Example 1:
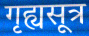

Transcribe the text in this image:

गृह्यसूत्र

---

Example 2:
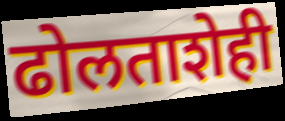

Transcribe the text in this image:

ढोलताशेही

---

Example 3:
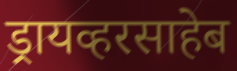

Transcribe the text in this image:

ड्रायव्हरसाहेब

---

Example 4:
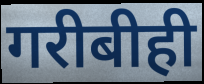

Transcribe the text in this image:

गरीबीही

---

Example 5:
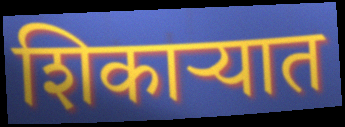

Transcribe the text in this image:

शिकाऱ्यात